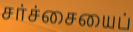
சர்ச்சையைப்